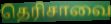
தெரிசாவை